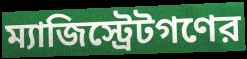
ম্যাজিস্ট্রেটগণের